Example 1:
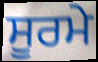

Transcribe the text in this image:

ਸੂਰਮੇ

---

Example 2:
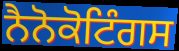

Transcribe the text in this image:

ਨੈਨੋਕੋਟਿੰਗਸ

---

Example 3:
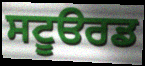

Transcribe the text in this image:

ਸਟੂੳਰਡ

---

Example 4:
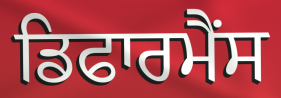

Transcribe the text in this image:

ਡਿਫਾਰਮੈਂਸ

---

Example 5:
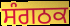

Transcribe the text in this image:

ਸੰਗਠਕ